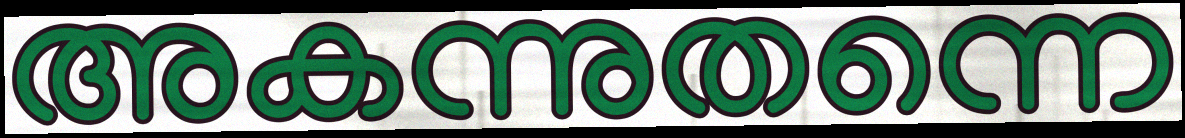
അകന്നുതന്നെ